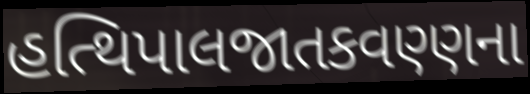
હત્થિપાલજાતકવણ્ણના